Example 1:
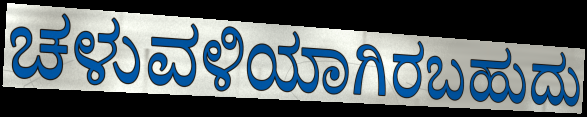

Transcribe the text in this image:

ಚಳುವಳಿಯಾಗಿರಬಹುದು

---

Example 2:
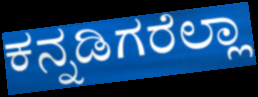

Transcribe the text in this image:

ಕನ್ನಡಿಗರೆಲ್ಲಾ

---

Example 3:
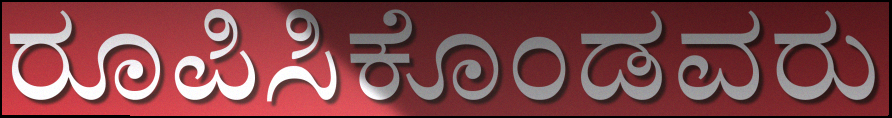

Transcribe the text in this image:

ರೂಪಿಸಿಕೊಂಡವರು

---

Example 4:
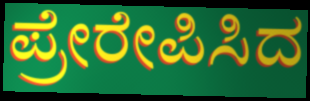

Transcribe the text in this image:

ಪ್ರೇರೇಪಿಸಿದ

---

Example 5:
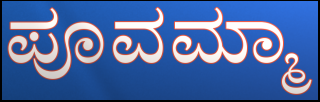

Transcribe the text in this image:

ಪೂವಮ್ಮಾ